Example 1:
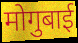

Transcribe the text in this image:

मोगुबाई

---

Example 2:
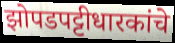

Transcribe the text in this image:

झोपडपट्टीधारकांचे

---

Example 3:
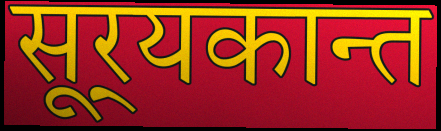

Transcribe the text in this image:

सूर्यकान्त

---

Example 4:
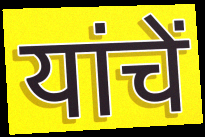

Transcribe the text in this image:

यांचें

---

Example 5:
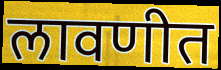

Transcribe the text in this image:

लावणीत